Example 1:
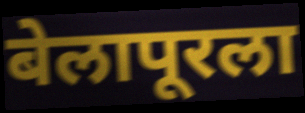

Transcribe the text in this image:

बेलापूरला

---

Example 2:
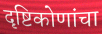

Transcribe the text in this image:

दृष्टिकोणांचा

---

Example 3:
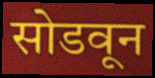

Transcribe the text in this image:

सोडवून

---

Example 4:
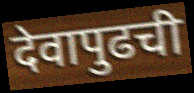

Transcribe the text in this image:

देवापुढची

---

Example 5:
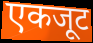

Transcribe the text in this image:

एकजूट